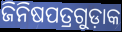
ଜିନିଷପତ୍ରଗୁଡ଼ାକ